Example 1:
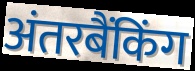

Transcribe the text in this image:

अंतरबैंकिंग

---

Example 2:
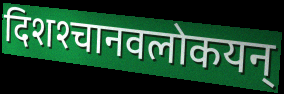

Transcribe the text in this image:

दिशश्चानवलोकयन्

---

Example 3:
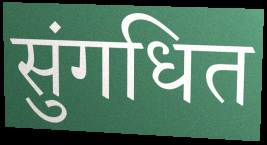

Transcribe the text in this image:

सुंगधित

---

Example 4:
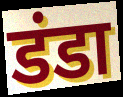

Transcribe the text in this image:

डंडा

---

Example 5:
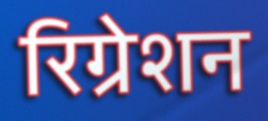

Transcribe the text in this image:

रिग्रेशन